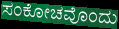
ಸಂಕೋಚವೊಂದು